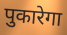
पुकारेगा